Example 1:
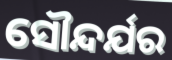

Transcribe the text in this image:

ସୌନ୍ଦର୍ଯର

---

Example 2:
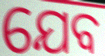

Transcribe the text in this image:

ଯେବ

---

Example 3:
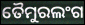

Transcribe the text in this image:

ତୈମୁରଲଂଗ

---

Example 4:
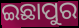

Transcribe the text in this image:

ଇଛାପୁର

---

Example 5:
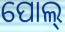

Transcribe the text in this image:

ପୋଲ୍